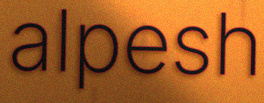
alpesh